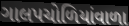
ગાલપચોળિયાંવાળા